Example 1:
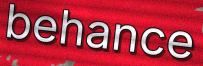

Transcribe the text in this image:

behance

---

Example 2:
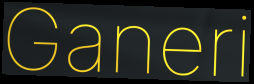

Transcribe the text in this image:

Ganeri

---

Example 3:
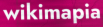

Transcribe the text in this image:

wikimapia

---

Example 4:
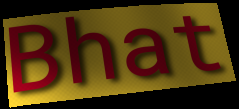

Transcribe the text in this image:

Bhat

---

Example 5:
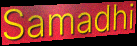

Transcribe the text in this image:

Samadhi